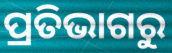
ପ୍ରତିଭାଗରୁ